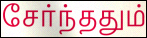
சேர்ந்ததும்